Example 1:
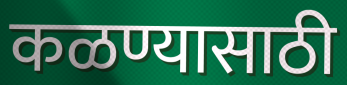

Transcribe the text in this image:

कळण्यासाठी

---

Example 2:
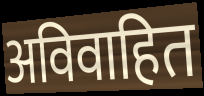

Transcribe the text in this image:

अविवाहित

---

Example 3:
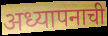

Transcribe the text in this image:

अध्यापनाची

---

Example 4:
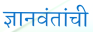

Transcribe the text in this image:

ज्ञानवंतांची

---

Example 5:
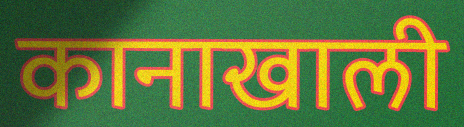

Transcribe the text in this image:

कानाखाली